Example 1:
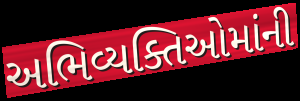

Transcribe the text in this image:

અભિવ્યક્તિઓમાંની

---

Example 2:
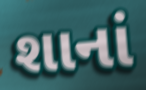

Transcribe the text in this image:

શાનાં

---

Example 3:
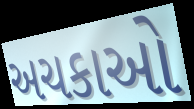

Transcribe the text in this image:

અચકાઓ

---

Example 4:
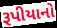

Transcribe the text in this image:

રૂપીયાનો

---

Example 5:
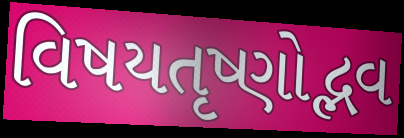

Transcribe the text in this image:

વિષયતૃષ્ણોદ્ભવ